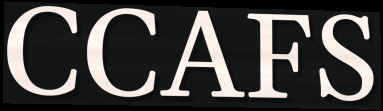
CCAFS